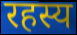
रहस्य